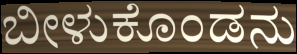
ಬೀಳುಕೊಂಡನು